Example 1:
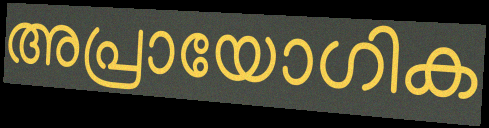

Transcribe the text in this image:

അപ്രായോഗിക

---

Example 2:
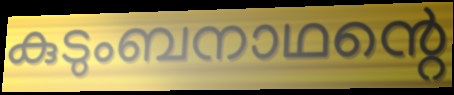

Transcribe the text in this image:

കുടുംബനാഥന്റെ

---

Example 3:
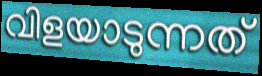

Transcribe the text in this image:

വിളയാടുന്നത്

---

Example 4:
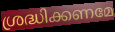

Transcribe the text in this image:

ശ്രദ്ധിക്കണമേ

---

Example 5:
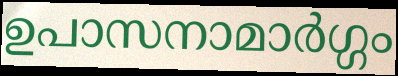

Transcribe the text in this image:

ഉപാസനാമാർഗ്ഗം